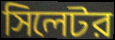
সিলেটর